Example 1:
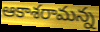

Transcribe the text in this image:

ఆకాశరామన్న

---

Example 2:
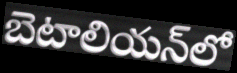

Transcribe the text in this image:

బెటాలియన్‌లో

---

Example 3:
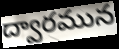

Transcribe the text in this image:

ద్వారమున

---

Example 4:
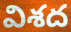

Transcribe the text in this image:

విశద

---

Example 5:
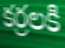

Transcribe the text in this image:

కర్రలకి